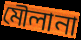
মৌলানা